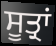
ਸੂਤ੍ਰਾਂ